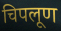
चिपलूण